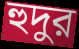
হুদুর